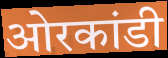
ओरकांडी